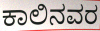
ಕಾಲಿನವರ